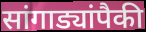
सांगाड्यांपैकी